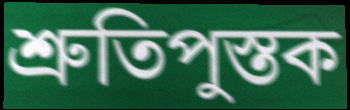
শ্রুতিপুস্তক